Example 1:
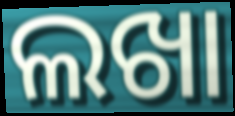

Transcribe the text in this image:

ଲଖା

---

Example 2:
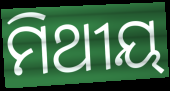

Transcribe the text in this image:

ମିଥୀୟ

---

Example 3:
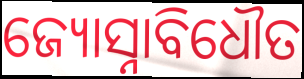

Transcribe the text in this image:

ଜ୍ୟୋସ୍ନାବିଧୌତ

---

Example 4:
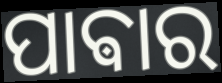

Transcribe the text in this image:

ପାଵାର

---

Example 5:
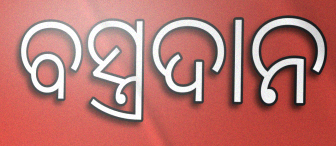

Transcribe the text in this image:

ବସ୍ତ୍ରଦାନ